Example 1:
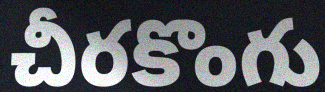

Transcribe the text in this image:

చీరకొంగు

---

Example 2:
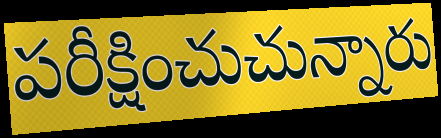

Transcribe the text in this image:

పరీక్షించుచున్నారు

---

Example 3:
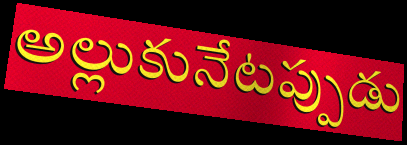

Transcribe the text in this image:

అల్లుకునేటప్పుడు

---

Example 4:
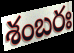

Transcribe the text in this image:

శంబరః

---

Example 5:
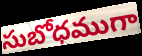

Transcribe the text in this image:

సుబోధముగా